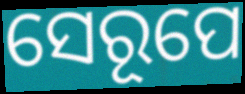
ସେରୂପେ